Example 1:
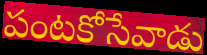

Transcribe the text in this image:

పంటకోసేవాడు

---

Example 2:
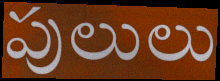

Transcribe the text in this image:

పులులు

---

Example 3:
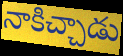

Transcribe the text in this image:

నాకిచ్చాడు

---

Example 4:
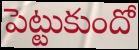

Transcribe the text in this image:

పెట్టుకుందో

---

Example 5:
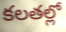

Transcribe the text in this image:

కలతల్లో